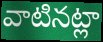
వాటినట్లా